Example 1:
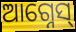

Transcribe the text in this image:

ଆଗ୍ନେସ୍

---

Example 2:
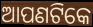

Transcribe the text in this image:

ଆପଣଟିକେ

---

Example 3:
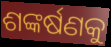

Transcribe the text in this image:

ଶଙ୍କର୍ଷଣକୁ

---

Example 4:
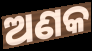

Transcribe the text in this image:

ଅଣକ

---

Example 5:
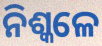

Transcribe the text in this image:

ନିଶ୍କଳେ